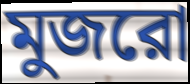
মুজরো